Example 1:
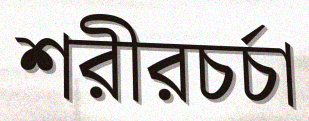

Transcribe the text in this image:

শরীরচর্চা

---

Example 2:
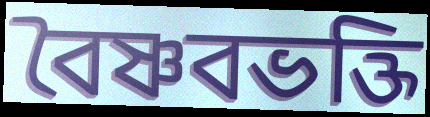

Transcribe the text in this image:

বৈষ্ণবভক্তি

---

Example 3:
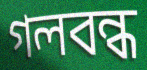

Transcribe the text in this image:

গলবন্ধ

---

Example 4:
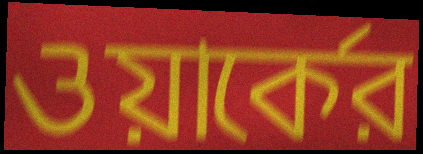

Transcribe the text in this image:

ওয়ার্কের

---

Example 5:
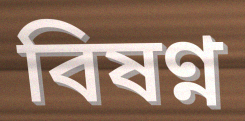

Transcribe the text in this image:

বিষণ্ন